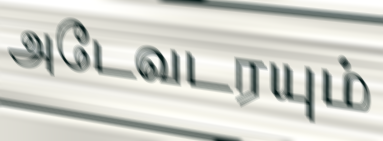
அடேவடரயும்